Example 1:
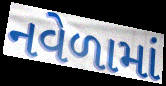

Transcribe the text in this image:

નવેળામાં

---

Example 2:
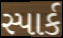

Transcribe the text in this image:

સ્પાર્ક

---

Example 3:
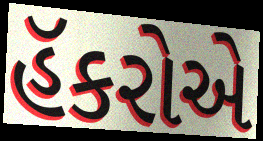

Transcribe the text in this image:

હૅકરોએ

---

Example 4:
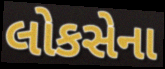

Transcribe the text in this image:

લોકસેના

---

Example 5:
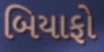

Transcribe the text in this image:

બિયાફો